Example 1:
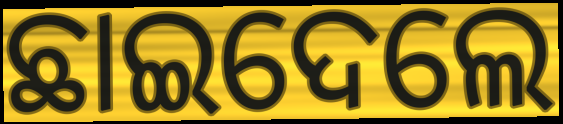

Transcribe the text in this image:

ଛାଇଦେଲେ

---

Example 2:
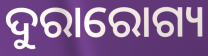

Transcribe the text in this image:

ଦୁରାରୋଗ୍ୟ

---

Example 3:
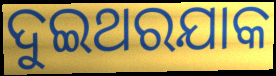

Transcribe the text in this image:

ଦୁଇଥରଯାକ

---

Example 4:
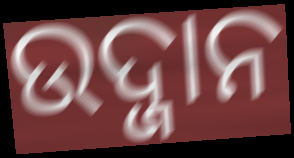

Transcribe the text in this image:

ଉଦ୍ଜାନ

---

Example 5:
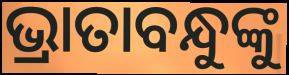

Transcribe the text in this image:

ଭ୍ରାତାବନ୍ଧୁଙ୍କୁ